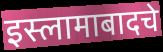
इस्लामाबादचे